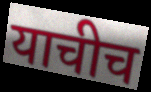
याचीच